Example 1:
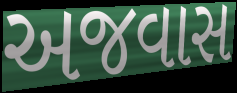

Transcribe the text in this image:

અજવાસ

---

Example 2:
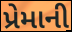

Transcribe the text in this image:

પ્રેમાની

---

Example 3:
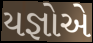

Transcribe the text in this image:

યજ્ઞોએ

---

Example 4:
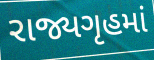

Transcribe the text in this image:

રાજ્યગૃહમાં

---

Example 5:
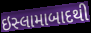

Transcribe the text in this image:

ઇસ્લામાબાદથી